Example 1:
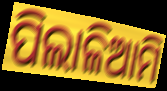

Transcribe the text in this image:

ପିଲାଳିଆମି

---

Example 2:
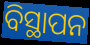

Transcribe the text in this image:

ବିସ୍ଥାପନ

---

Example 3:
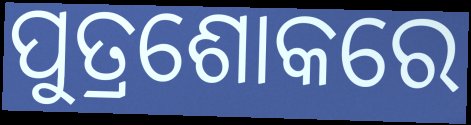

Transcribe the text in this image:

ପୁତ୍ରଶୋକରେ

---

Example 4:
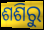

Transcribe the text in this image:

ଶଶିରୁ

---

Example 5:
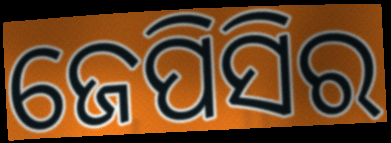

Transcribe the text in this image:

ଜେପିସିର